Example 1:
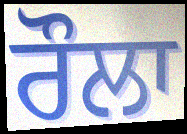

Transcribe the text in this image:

ਰੌਲਾ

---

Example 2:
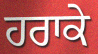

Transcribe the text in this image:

ਹਰਾਕੇ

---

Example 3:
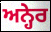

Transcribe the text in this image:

ਅਨ੍ਹੇਰ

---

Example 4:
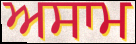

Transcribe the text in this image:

ਅਸਾਮ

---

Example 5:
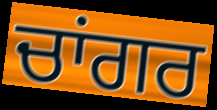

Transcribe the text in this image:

ਚਾਂਗਰ